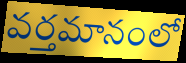
వర్తమానంలో